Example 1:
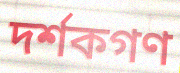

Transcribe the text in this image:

দর্শকগণ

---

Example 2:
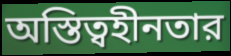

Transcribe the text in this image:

অস্তিত্বহীনতার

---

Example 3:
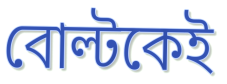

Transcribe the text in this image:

বোল্টকেই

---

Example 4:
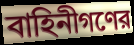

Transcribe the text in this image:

বাহিনীগণের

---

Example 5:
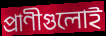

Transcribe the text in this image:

প্রাণীগুলোই